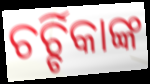
ଚର୍ଚ୍ଚିକାଙ୍କ